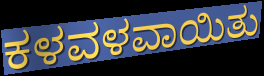
ಕಳವಳವಾಯಿತು